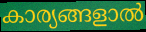
കാര്യങ്ങളാൽ